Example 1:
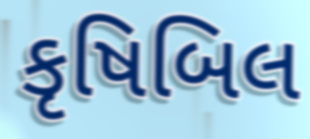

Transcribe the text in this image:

કૃષિબિલ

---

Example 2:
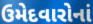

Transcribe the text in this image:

ઉમેદવારોનાં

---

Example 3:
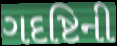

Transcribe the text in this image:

ગદષ્ટિની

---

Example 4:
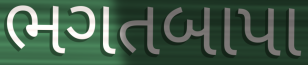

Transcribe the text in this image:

ભગતબાપા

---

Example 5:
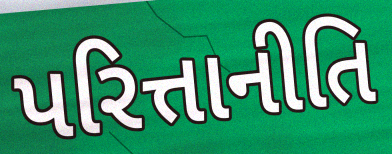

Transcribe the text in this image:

પરિત્તાનીતિ